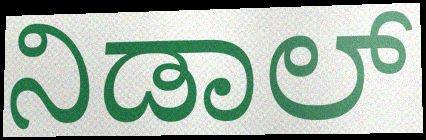
ನಿಡಾಲ್